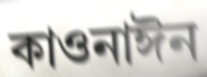
কাওনাঈন